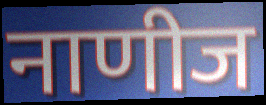
नाणीज